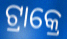
ଟ୍ରାକ୍ରେ